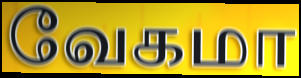
வேகமா